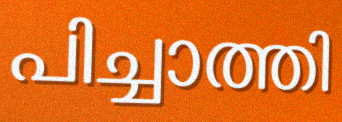
പിച്ചാത്തി